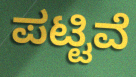
ಪಟ್ಟಿವೆ